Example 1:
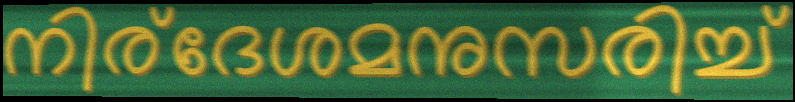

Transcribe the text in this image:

നിര്ദേശമനുസരിച്ച്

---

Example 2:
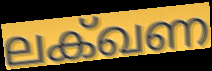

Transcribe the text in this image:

ലക്ഖണ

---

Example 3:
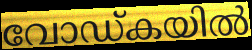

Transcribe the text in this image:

വോഡ്കയിൽ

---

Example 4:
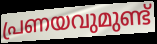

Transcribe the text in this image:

പ്രണയവുമുണ്ട്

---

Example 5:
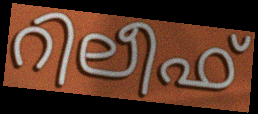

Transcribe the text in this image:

റിലീഫ്